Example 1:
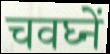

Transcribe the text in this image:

चवघ्नें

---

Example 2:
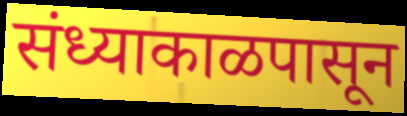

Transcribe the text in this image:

संध्याकाळपासून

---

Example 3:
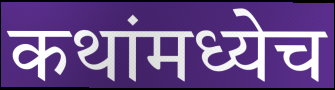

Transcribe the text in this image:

कथांमध्येच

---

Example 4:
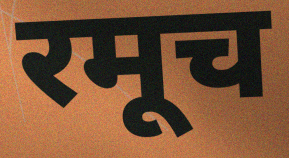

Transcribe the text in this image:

रमूच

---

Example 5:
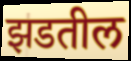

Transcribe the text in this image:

झडतील